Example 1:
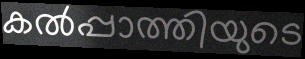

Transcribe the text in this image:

കൽപ്പാത്തിയുടെ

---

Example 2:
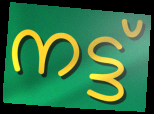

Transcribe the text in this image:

നട്ട്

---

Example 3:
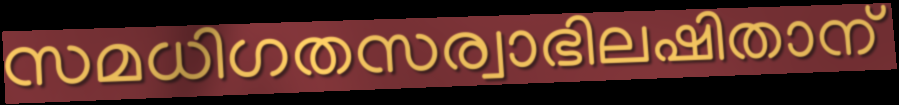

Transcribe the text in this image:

സമധിഗതസര്വാഭിലഷിതാന്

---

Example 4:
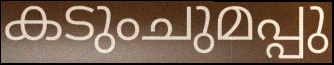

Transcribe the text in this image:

കടുംചുമപ്പു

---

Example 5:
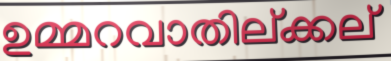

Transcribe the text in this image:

ഉമ്മറവാതില്ക്കല്